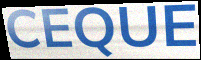
CEQUE